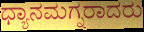
ಧ್ಯಾನಮಗ್ನರಾದರು